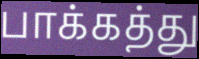
பாக்கத்து